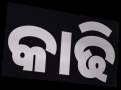
କାଢି